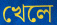
খেলে